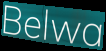
Belwa